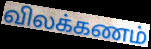
விலக்கணம்